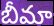
బీమా